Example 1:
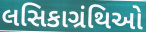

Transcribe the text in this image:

લસિકાગ્રંથિઓ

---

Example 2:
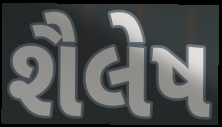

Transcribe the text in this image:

શૈલેષ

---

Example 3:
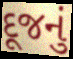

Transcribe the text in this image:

દૂજનું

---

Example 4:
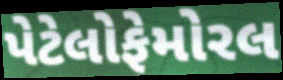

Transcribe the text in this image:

પેટેલોફેમોરલ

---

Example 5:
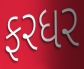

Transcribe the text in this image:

ફરધર